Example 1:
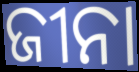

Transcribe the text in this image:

ଜୀନା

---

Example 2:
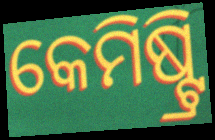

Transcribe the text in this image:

କେମିଷ୍ଟ୍ରି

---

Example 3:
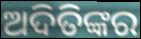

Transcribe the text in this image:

ଅଦିତିଙ୍କର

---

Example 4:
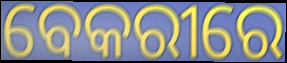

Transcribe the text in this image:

ବେକରୀରେ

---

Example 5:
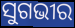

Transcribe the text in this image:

ସୁଗଭୀର